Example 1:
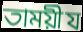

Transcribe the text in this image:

তাময়ীয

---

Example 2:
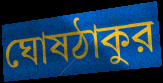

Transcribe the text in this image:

ঘোষঠাকুর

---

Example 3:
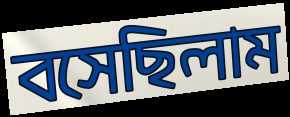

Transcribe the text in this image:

বসেছিলাম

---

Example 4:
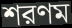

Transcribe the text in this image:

শরণম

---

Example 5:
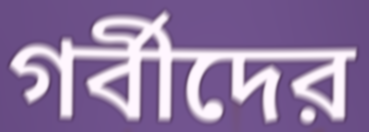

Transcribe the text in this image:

গর্বীদের